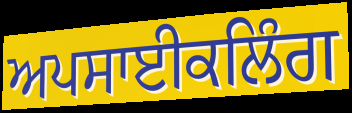
ਅਪਸਾਈਕਲਿੰਗ